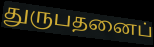
துருபதனைப்